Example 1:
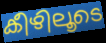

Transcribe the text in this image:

കീഴിലൂടെ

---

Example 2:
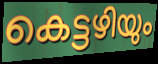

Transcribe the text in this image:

കെട്ടഴിയും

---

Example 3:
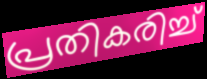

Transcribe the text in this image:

പ്രതികരിച്ച്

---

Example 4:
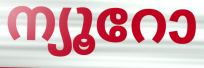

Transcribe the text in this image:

ന്യൂറോ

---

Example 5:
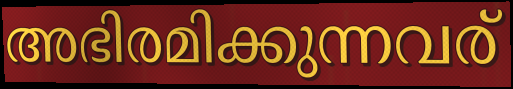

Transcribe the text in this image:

അഭിരമിക്കുന്നവര്